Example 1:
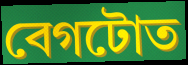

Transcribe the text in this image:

বেগটোত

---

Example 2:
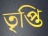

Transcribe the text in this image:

তৃপ্তি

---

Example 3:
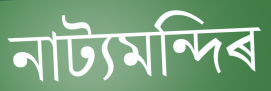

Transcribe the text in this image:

নাট্যমন্দিৰ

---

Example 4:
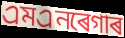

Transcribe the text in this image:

এমএনৰেগাৰ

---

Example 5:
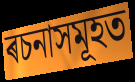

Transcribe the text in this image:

ৰচনাসমূহত